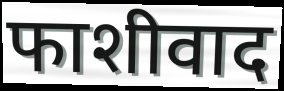
फाशीवाद